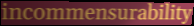
incommensurability